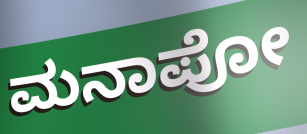
ಮನಾಪೋ